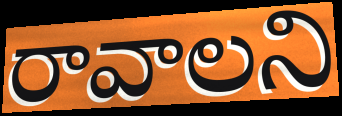
రావాలని